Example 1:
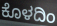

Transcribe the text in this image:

ಕೊಳದಿಂ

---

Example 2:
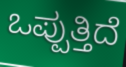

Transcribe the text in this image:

ಒಪ್ಪುತ್ತಿದೆ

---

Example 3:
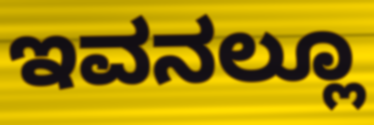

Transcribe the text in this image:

ಇವನಲ್ಲೂ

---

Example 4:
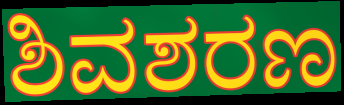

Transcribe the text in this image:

ಶಿವಶರಣ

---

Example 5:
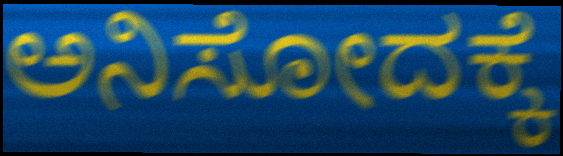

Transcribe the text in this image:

ಅನಿಸೋದಕ್ಕೆ